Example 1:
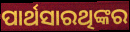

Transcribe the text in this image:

ପାର୍ଥସାରଥିଙ୍କର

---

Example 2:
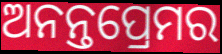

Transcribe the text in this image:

ଅନନ୍ତପ୍ରେମର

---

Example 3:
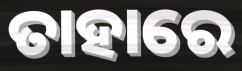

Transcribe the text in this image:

ତାହାରେ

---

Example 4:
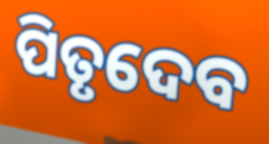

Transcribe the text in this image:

ପିତୃଦେବ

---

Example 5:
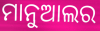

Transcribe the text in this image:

ମାନୁଆଲର